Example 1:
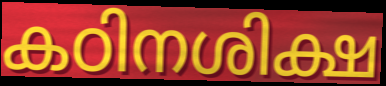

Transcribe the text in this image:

കഠിനശിക്ഷ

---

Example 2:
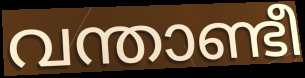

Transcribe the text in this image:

വന്താണ്ടീ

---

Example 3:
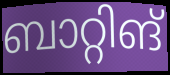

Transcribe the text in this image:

ബാറ്റിങ്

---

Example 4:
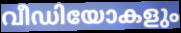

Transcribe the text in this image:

വീഡിയോകളും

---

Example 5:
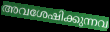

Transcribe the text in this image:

അവശേഷിക്കുന്നവ